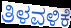
ತಿಳವಳಿಕೆ